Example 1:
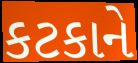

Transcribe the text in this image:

કટકાને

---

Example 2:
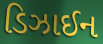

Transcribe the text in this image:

ડિઝાઈન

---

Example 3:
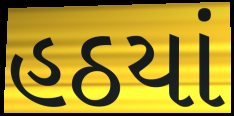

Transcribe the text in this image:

હઠયાં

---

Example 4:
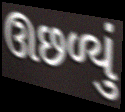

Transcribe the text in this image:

ઊછળ્યું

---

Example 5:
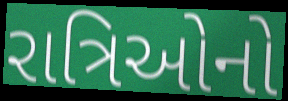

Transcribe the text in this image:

રાત્રિઓનો